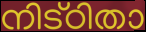
നിട്ഠിതാ